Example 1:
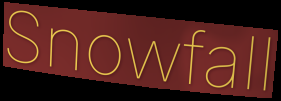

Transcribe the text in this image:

Snowfall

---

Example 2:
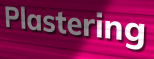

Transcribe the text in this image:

Plastering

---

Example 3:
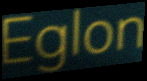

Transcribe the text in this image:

Eglon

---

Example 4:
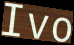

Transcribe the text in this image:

Ivo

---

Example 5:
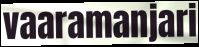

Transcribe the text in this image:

vaaramanjari